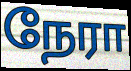
நேரா